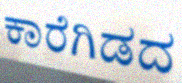
ಕಾರೆಗಿಡದ